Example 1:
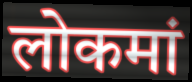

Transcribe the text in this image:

लोकमां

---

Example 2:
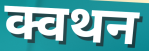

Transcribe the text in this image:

क्वथन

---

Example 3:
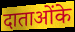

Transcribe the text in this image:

दाताओंके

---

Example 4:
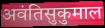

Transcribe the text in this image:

अवंतिसुकुमाल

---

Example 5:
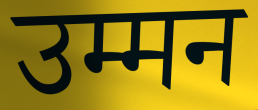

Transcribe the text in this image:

उम्मन